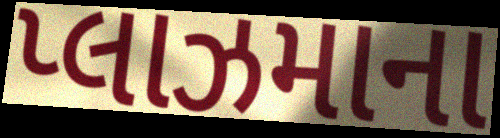
પ્લાઝમાના